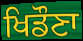
ਖਿਡੌਣਾ